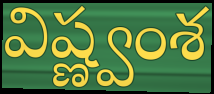
విష్ణ్వంశ